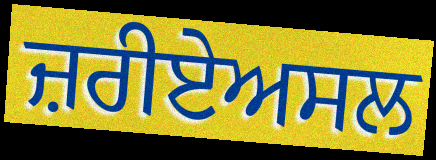
ਜ਼ਰੀਏਅਸਲ